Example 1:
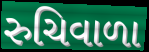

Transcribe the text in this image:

રુચિવાળા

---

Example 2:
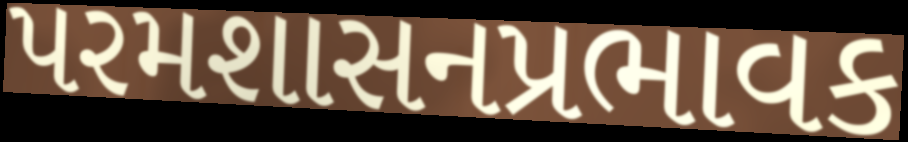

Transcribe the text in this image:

પરમશાસનપ્રભાવક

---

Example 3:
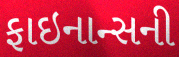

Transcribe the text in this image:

ફાઇનાન્સની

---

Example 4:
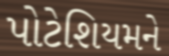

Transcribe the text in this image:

પોટેશિયમને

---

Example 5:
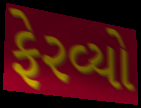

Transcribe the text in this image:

ફેરવ્યો